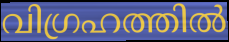
വിഗ്രഹത്തിൽ